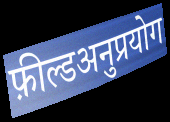
फ़ील्डअनुप्रयोग